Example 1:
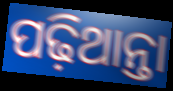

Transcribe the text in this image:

ପଢ଼ିଥାନ୍ତା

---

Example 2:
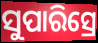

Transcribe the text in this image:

ସୁପାରିସ୍ରେ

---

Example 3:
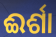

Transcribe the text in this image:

ଈର୍ଶା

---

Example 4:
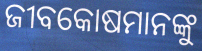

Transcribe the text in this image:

ଜୀବକୋଷମାନଙ୍କୁ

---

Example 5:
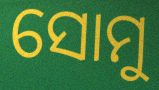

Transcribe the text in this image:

ସୋମୁ